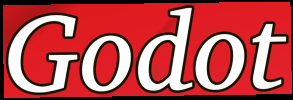
Godot